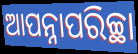
ଆପନ୍ନାପରିଚ୍ଛା